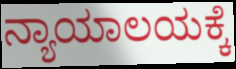
ನ್ಯಾಯಾಲಯಕ್ಕೆ